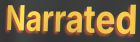
Narrated